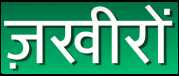
ज़खीरों